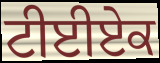
ਟੀਈਏਕ